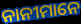
ନାନୀମାନେ